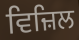
ਵਿਜ਼ਿਲ